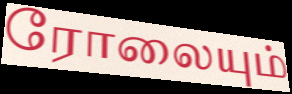
ரோலையும்